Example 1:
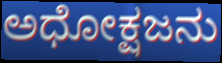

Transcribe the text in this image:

ಅಧೋಕ್ಷಜನು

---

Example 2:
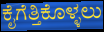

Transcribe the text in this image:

ಕೈಗೆತ್ತಿಕೊಳ್ಳಲು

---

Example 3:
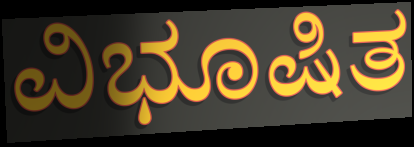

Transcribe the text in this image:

ವಿಭೂಷಿತ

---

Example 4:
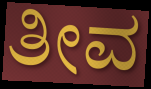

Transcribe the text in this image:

ತೀವ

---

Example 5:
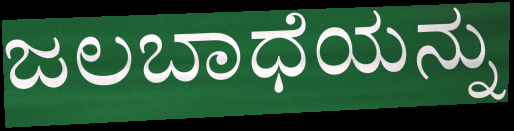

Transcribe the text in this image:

ಜಲಬಾಧೆಯನ್ನು